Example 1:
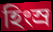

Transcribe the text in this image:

হিংস্ৰ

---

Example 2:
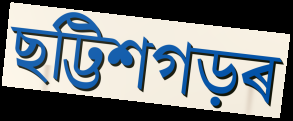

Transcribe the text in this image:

ছট্টিশগড়ৰ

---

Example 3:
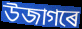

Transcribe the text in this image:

উজাগৰে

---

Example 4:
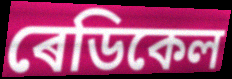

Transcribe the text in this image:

ৰেডিকেল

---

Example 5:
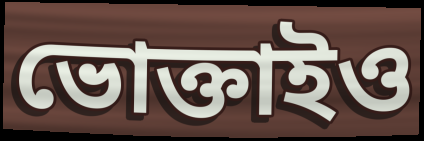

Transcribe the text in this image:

ভোক্তাইও